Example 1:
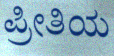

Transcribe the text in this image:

ಪ್ರೀತಿಯ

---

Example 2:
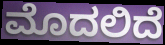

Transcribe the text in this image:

ಮೊದಲಿದೆ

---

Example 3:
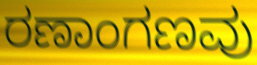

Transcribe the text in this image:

ರಣಾಂಗಣವು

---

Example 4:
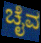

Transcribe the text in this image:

ಚೈವ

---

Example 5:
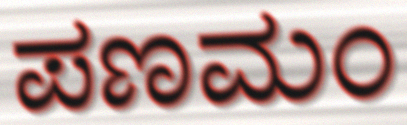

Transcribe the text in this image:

ಪಣಮಂ